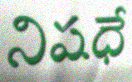
నిషధే